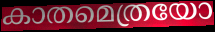
കാതമെത്രയോ